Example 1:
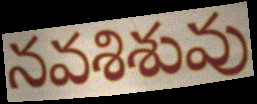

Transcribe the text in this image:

నవశిశువు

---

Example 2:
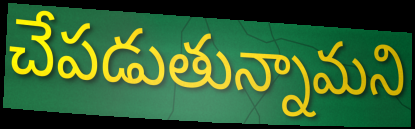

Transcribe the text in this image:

చేపడుతున్నామని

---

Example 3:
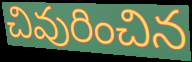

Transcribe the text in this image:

చివురించిన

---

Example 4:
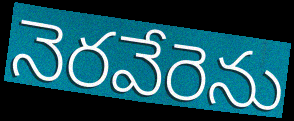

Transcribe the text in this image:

నెరవేరెను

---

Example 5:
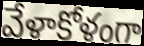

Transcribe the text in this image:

వేళాకోళంగా